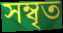
সম্বৃত